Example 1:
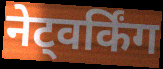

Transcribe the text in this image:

नेट्वर्किंग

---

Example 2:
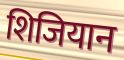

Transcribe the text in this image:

शिजियान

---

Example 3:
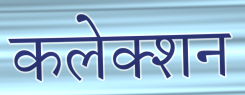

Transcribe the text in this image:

कलेक्शन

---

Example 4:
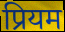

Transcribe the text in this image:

प्रियम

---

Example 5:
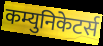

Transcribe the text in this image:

कम्युनिकेटर्स